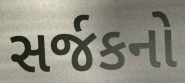
સર્જકનો